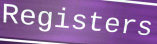
Registers